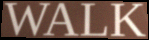
WALK